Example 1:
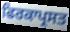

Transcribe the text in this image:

ਫਿਰਕਾਪ੍ਰਸਤ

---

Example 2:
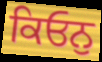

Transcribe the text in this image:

ਕਿਓਨੁ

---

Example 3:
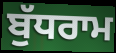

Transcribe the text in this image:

ਬੁੱਧਰਾਮ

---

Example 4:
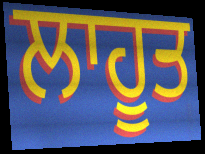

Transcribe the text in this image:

ਲਾਹੂਤ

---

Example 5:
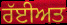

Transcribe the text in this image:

ਰੱਈਅਤ